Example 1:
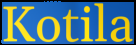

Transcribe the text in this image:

Kotila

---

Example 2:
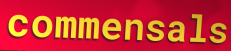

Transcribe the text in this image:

commensals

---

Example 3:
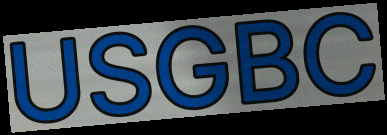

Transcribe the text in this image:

USGBC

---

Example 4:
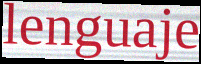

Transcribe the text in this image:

lenguaje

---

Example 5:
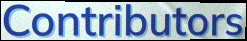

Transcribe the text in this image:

Contributors